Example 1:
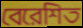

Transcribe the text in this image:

বেরেশিত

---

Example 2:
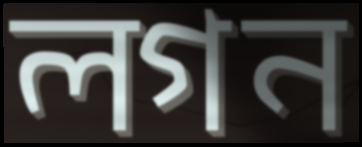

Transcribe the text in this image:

লগন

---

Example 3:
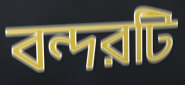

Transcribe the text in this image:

বন্দরটি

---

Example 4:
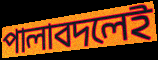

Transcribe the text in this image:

পালাবদলেই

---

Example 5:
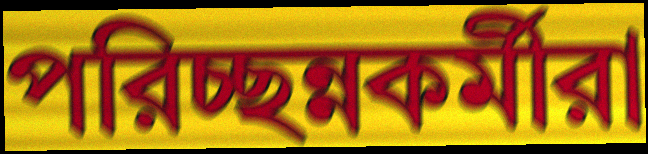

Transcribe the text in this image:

পরিচ্ছন্নকর্মীরা